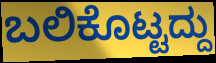
ಬಲಿಕೊಟ್ಟದ್ದು